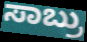
ಸಾಬ್ರು